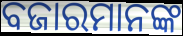
ବଜାରମାନଙ୍କ